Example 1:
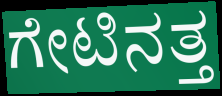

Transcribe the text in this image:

ಗೇಟಿನತ್ತ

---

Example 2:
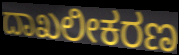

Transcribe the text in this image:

ದಾಖಲೀಕರಣ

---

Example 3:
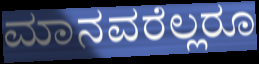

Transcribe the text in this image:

ಮಾನವರೆಲ್ಲರೂ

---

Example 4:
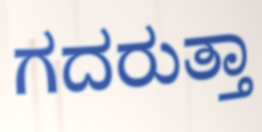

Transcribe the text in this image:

ಗದರುತ್ತಾ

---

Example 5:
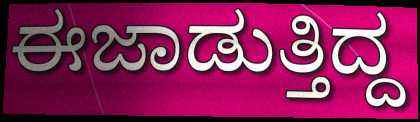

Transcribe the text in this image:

ಈಜಾಡುತ್ತಿದ್ದ